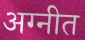
अग्नीत